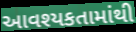
આવશ્યકતામાંથી